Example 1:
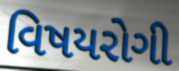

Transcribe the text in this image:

વિષયરોગી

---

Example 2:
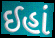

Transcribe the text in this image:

ઈહાં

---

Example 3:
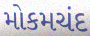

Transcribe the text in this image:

મોકમચંદ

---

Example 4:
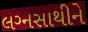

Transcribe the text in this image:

લગ્‍નસાથીને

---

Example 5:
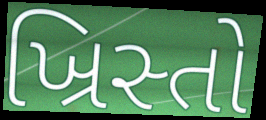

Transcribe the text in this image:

ખ્રિસ્તો